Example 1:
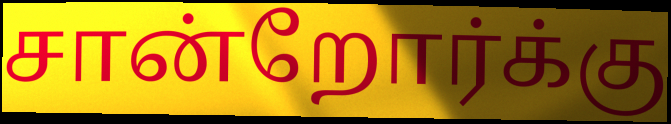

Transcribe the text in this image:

சான்றோர்க்கு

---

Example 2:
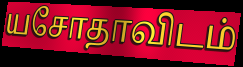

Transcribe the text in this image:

யசோதாவிடம்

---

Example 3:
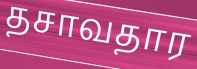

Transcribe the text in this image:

தசாவதார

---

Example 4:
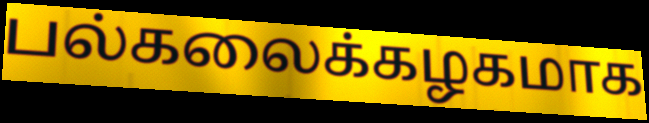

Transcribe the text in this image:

பல்கலைக்கழகமாக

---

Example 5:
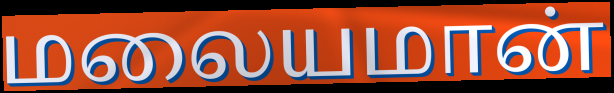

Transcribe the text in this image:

மலையமான்